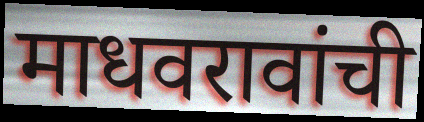
माधवरावांची